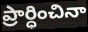
ప్రార్ధించినా